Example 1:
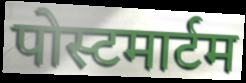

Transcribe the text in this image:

पोस्‍टमार्टम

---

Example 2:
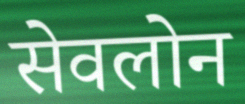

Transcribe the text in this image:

सेवलोन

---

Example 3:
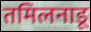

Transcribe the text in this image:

तमिलनाडू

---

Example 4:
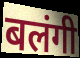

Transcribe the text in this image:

बलंगी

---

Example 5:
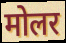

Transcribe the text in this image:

मोलर